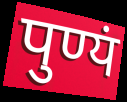
पुण्यं